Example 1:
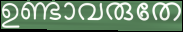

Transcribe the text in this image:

ഉണ്ടാവരുതേ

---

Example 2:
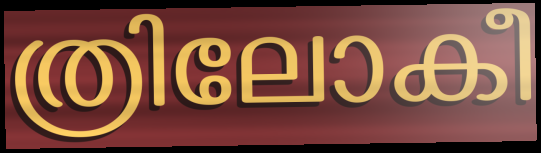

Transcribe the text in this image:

ത്രിലോകീ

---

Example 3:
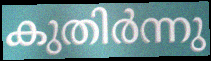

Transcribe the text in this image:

കുതിർന്നു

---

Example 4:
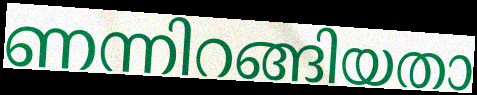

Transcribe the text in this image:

ണന്നിറങ്ങിയതാ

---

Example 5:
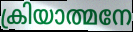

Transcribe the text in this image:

ക്രിയാത്മനേ